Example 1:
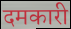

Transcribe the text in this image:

दमकारी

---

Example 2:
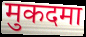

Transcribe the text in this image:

मुकदमा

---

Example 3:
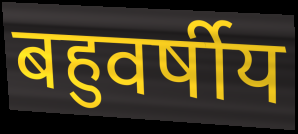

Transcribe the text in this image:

बहुवर्षीय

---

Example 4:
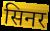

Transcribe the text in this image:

सिनर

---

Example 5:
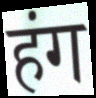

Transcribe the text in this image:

हंग